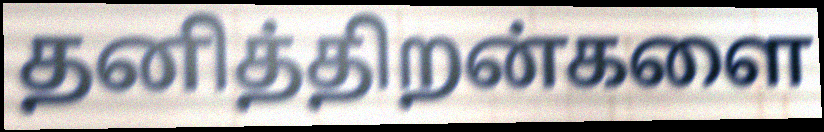
தனித்திறன்களை